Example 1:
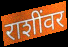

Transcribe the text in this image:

राशींवर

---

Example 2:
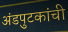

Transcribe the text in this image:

अंडपुटकांची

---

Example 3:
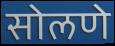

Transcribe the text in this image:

सोलणे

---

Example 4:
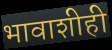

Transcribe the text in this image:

भावाशीही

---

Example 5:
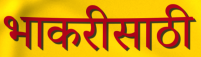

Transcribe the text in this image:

भाकरीसाठी